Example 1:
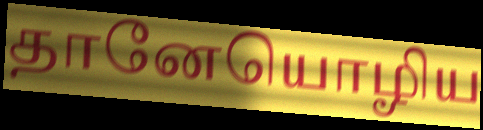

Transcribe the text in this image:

தானேயொழிய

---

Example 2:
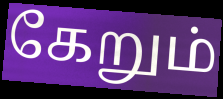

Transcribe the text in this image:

கேறும்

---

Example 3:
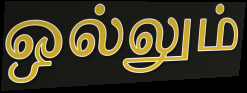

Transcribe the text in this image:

ஒல்லும்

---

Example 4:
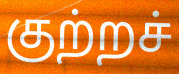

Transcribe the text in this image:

குற்றச்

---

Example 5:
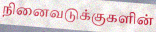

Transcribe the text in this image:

நினைவடுக்குகளின்